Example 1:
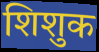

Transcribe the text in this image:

शिशुक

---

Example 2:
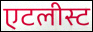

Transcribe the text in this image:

एटलीस्ट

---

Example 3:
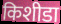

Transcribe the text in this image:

किशीडा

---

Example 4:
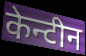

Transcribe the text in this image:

केन्टीन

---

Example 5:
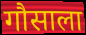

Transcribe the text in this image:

गौसाला